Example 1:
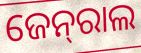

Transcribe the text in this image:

ଜେନ୍‌ରାଲ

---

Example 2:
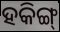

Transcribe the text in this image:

ହକିଙ୍ଗ୍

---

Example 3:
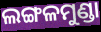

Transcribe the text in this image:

ଲଙ୍ଗଳମୁଣ୍ଡା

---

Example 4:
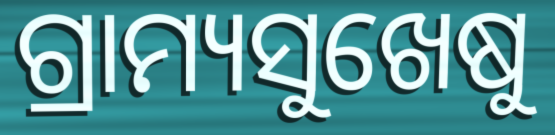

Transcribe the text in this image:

ଗ୍ରାମ୍ୟସୁଖେଷୁ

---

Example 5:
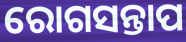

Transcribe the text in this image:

ରୋଗସନ୍ତାପ